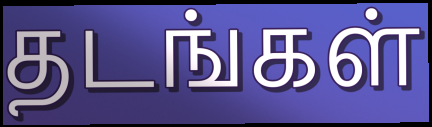
தடங்கள்